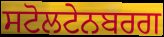
ਸਟੋਲਟੇਨਬਰਗ